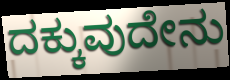
ದಕ್ಕುವುದೇನು